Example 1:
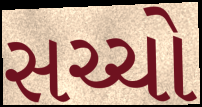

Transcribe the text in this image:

સચ્ચો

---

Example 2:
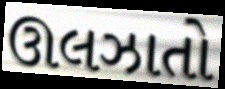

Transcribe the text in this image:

ઊલઝાતો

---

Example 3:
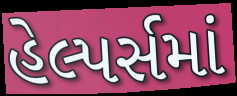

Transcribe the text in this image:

હેલ્પર્સમાં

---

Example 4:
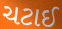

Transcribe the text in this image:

ચટાઈ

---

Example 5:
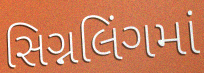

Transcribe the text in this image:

સિગ્નલિંગમાં